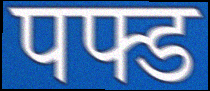
पफ्ड